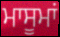
ਮਾਸੂਮਾਂ